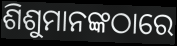
ଶିଶୁମାନଙ୍କଠାରେ